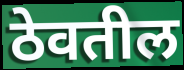
ठेवतील